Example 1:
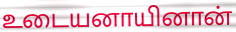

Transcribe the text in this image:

உடையனாயினான்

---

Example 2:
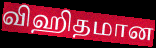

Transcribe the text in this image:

விஹிதமான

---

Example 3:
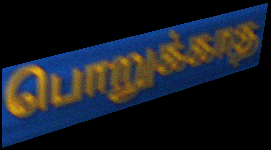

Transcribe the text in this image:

பொறுக்காத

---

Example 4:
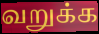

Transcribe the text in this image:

வறுக்க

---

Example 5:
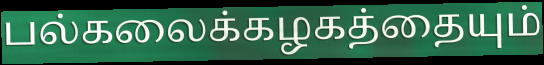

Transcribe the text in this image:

பல்கலைக்கழகத்தையும்